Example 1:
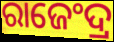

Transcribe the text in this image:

ରାଜେଂଦ୍ର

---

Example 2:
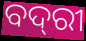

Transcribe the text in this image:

ବଦ୍‌ରୀ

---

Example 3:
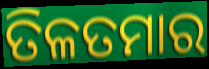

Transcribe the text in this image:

ତିଳତମାର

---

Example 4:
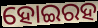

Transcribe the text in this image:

ହୋଇରହ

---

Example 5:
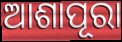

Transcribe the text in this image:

ଆଶାପୂରା